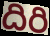
దిరి